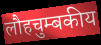
लौहचुम्बकीय